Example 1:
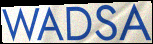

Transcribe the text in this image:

WADSA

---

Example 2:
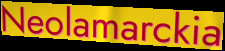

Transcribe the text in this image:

Neolamarckia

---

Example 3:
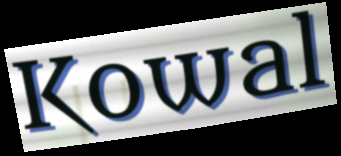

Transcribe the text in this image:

Kowal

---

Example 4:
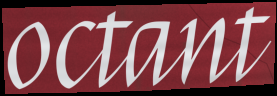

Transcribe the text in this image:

octant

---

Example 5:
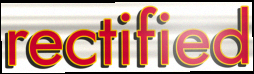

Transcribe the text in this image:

rectified